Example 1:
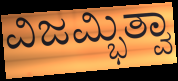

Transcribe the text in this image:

ವಿಜಮ್ಭಿತ್ವಾ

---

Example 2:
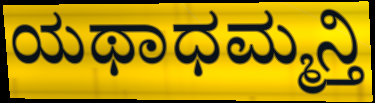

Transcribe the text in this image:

ಯಥಾಧಮ್ಮನ್ತಿ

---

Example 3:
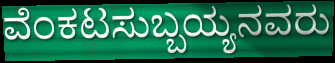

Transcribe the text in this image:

ವೆಂಕಟಸುಬ್ಬಯ್ಯನವರು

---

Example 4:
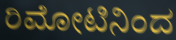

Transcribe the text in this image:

ರಿಮೋಟಿನಿಂದ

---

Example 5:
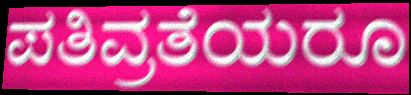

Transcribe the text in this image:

ಪತಿವ್ರತೆಯರೂ